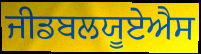
ਜੀਡਬਲਯੂਏਐਸ